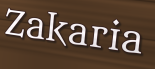
Zakaria